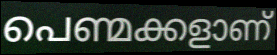
പെണ്മക്കളാണ്